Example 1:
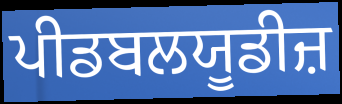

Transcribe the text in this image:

ਪੀਡਬਲਯੂਡੀਜ਼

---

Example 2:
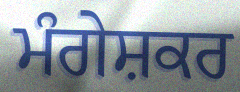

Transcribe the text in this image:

ਮੰਗੇਸ਼ਕਰ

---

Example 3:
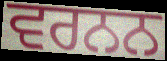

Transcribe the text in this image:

ਵਰਨਨ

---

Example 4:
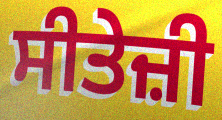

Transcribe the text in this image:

ਸੀਤੇਜ਼ੀ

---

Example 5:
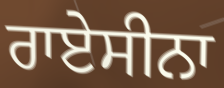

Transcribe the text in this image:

ਰਾਏਸੀਨਾ